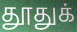
தூதுக்